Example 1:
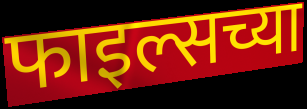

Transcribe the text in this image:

फाइल्सच्या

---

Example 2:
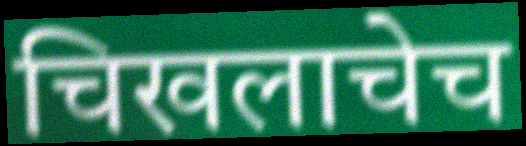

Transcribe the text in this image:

चिखलाचेच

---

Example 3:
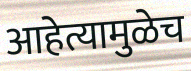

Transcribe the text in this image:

आहेत्यामुळेच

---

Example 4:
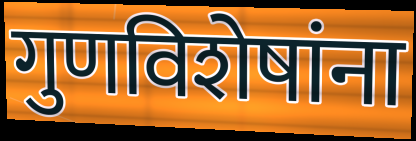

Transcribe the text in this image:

गुणविशेषांना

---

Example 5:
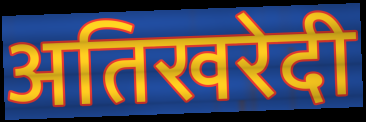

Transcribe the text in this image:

अतिखरेदी